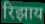
रिझाय